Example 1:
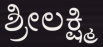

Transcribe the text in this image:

ಶ್ರೀಲಕ್ಷ್ಮಿ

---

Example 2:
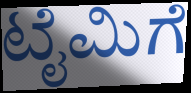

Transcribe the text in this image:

ಟೈಮಿಗೆ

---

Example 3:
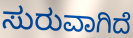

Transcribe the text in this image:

ಸುರುವಾಗಿದೆ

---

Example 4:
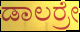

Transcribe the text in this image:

ಡಾಲರ್ರೇ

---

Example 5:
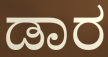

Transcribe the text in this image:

ಡಾರ